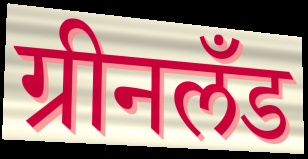
ग्रीनलँड